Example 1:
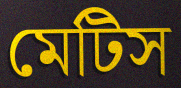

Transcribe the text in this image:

মেটিস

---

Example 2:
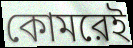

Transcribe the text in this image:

কোমরেই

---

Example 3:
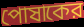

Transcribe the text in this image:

পোষাকের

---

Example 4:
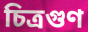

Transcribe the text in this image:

চিত্রগুণ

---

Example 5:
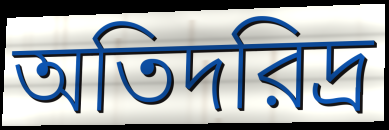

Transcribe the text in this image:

অতিদরিদ্র